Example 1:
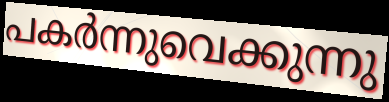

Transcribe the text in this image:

പകർന്നുവെക്കുന്നു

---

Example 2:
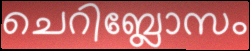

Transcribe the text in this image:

ചെറിബ്ലോസം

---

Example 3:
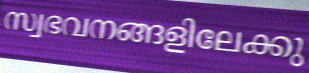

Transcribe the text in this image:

സ്വഭവനങ്ങളിലേക്കു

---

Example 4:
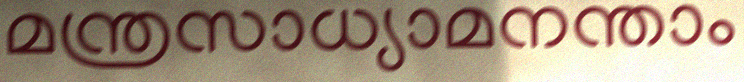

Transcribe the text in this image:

മന്ത്രസാധ്യാമനന്താം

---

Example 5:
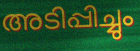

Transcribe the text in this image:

അടിപ്പിച്ചും